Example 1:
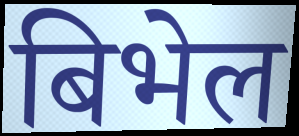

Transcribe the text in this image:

बिभेल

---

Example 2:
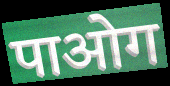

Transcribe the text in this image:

पाओग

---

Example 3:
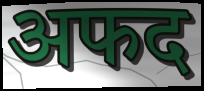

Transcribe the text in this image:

अफद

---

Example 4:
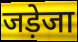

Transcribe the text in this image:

जड़ेजा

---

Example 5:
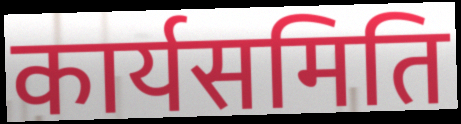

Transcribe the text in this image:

कार्यसमिति